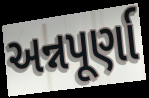
અન્નપૂર્ણા